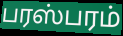
பரஸ்பரம்